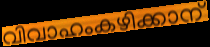
വിവാഹംകഴിക്കാന്